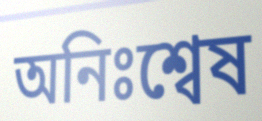
অনিঃশ্বেষ